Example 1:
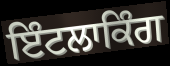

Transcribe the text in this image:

ਇੰਟਲਾਕਿੰਗ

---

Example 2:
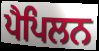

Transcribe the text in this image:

ਪੈਪਿਲਨ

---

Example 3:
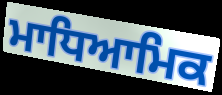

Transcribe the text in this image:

ਮਾਧਿਆਮਿਕ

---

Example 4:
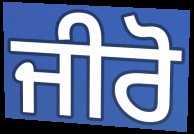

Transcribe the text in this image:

ਜੀਰੋ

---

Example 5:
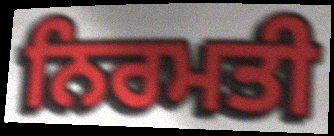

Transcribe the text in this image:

ਨਿਰਮਤੀ